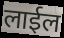
लाईल